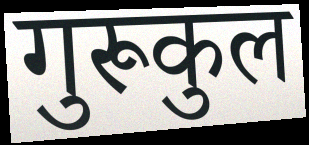
गुरूकुल